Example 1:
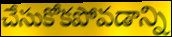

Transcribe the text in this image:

చేసుకోకపోవడాన్ని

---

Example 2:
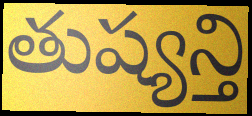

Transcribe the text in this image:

తుష్యన్తి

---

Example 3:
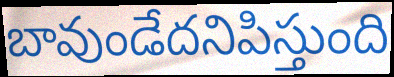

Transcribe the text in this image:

బావుండేదనిపిస్తుంది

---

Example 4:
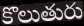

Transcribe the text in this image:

కొలుతురు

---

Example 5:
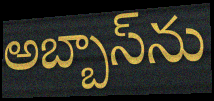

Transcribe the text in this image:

అబ్బాస్‌ను